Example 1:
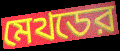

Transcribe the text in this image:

মেথডের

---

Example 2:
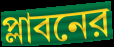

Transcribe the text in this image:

প্লাবনের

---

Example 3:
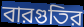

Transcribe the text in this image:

বারগুতির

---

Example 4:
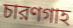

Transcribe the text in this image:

চারণগাহ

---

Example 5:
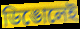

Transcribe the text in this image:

ডিঙোলেই